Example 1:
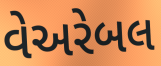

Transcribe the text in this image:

વેઅરેબલ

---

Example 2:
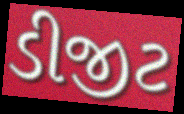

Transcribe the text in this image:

ડીજીટ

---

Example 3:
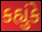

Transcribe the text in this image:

કહ્યુંકે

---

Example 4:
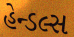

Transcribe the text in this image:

હેન્ડલ્સ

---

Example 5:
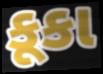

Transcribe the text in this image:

કૂકા